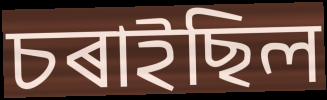
চৰাইছিল